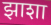
झाशा